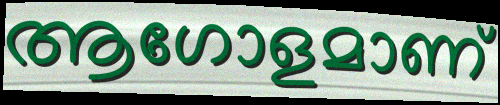
ആഗോളമാണ്